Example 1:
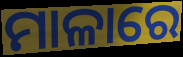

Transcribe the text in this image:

ମାଳାରେ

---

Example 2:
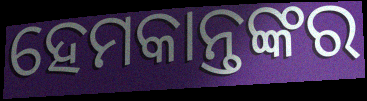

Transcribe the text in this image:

ହେମକାନ୍ତଙ୍କର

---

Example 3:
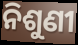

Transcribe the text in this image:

ନିଶୁଣୀ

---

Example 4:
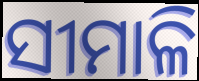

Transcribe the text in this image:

ସୀମାଳି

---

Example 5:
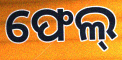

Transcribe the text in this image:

ଫେଲ୍